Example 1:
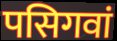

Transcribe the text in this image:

पसिगवां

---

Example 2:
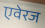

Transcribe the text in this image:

एवेरज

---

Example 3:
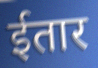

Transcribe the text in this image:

ईतार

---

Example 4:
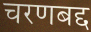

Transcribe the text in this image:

चरणबद्द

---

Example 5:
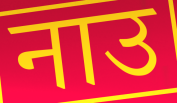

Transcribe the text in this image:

नाउ